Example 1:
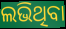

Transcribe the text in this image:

ଲଭିଥିବା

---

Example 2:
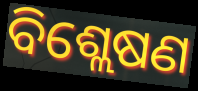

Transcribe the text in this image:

ବିଶ୍ଲେଷଣ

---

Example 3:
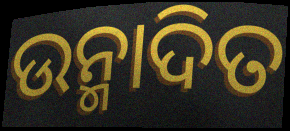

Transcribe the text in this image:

ଉନ୍ମାଦିତ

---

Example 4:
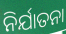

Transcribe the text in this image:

ନିର୍ଯାତନା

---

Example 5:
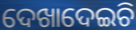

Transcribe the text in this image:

ଦେଖାଦେଇଚି